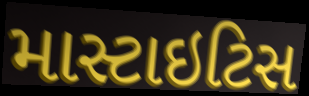
માસ્ટાઇટિસ